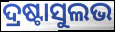
ଦ୍ରଷ୍ଟାସୁଲଭ